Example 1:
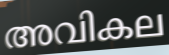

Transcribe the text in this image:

അവികല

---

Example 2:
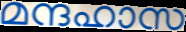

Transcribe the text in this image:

മന്ദഹാസ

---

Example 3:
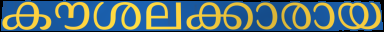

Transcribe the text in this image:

കൗശലക്കാരായ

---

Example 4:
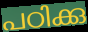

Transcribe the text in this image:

പഠിക്കു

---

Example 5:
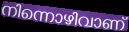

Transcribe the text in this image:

നിന്നൊഴിവാണ്